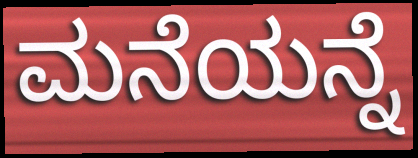
ಮನೆಯನ್ನೆ